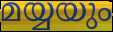
മയ്യയും